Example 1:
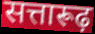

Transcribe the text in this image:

सत्तारूढ़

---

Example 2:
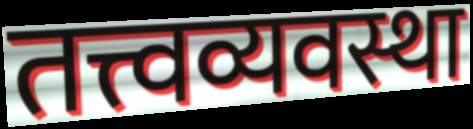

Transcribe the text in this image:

तत्त्वव्यवस्था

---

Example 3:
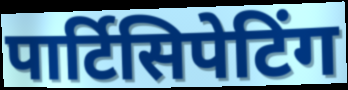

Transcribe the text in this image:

पार्टिसिपेटिंग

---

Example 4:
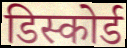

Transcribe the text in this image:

डिस्कोर्ड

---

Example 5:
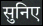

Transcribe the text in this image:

सुनिए